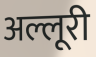
अल्लूरी